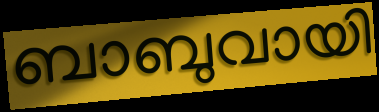
ബാബുവായി